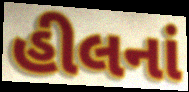
હીલનાં